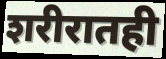
शरीरातही